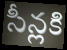
సీన్లకి